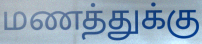
மணத்துக்கு